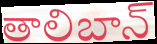
తాలిబాన్